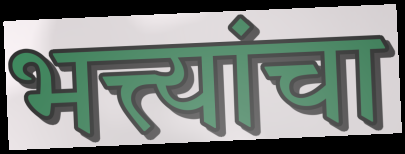
भत्त्यांचा